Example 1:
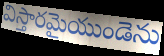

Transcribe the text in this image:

విస్తారమైయుండెను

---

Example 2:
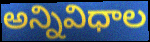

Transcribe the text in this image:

అన్నివిధాల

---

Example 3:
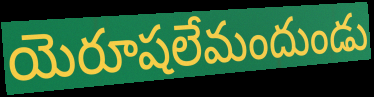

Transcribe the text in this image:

యెరూషలేమందుండు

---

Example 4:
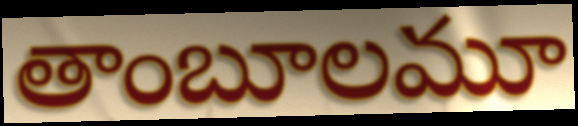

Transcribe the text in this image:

తాంబూలమూ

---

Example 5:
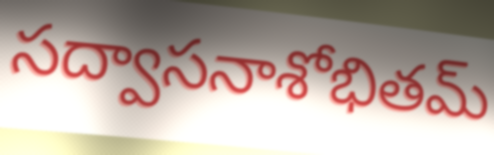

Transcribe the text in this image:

సద్వాసనాశోభితమ్